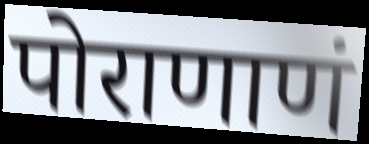
पोराणाणं